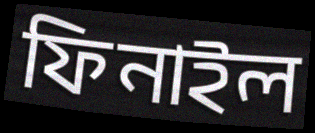
ফিনাইল